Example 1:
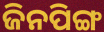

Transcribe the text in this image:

ଜିନପିଙ୍ଗ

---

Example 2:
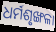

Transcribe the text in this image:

ଧର୍ମଶୃଙ୍ଖଳା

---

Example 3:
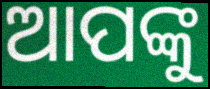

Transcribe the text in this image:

ଆପଙ୍କୁ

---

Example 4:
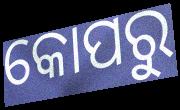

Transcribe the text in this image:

କୋପରୁ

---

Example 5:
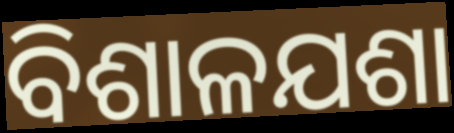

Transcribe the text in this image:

ବିଶାଳଯଶା